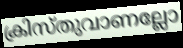
ക്രിസ്തുവാണല്ലോ